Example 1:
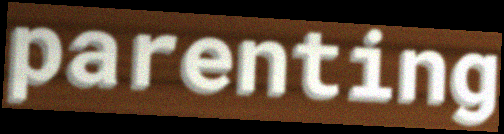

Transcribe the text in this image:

parenting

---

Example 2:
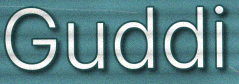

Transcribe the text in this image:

Guddi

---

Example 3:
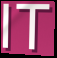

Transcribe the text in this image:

IT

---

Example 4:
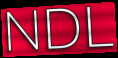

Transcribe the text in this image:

NDL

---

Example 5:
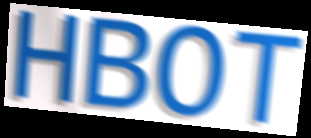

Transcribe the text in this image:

HBOT